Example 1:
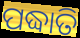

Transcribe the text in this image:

ପଦ୍ଧାତି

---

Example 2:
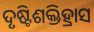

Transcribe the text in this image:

ଦୃଷ୍ଟିଶକ୍ତିହ୍ରାସ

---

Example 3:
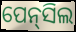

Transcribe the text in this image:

ପେନ୍‍ସିଲ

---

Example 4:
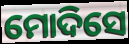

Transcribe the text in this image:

ମୋଦିସେ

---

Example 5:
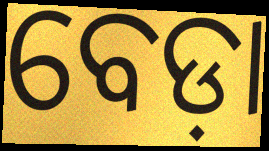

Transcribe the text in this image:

ବେଡ଼ା